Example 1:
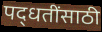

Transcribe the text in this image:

पद्धतींसाठी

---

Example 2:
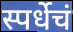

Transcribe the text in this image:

स्पर्धेचं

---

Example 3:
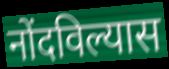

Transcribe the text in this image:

नोंदविल्यास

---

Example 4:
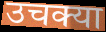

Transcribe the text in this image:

उचक्या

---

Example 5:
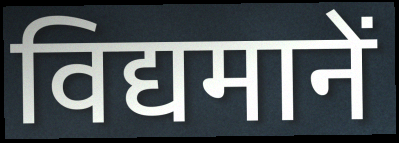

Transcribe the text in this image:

विद्यमानें